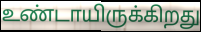
உண்டாயிருக்கிறது